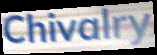
Chivalry